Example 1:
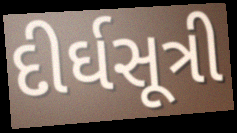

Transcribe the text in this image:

દીર્ઘસૂત્રી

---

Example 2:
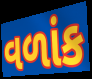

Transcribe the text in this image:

વળાંક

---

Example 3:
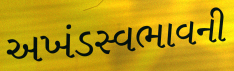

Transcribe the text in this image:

અખંડસ્વભાવની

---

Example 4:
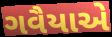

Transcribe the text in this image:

ગવૈયાએ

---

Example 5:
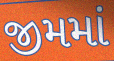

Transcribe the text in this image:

જીમમાં